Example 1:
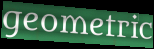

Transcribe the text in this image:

geometric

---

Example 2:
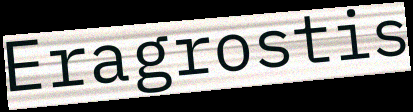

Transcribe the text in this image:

Eragrostis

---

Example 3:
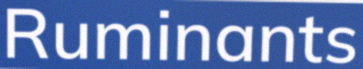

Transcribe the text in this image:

Ruminants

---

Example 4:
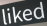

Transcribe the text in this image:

liked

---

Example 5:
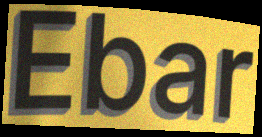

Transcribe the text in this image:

Ebar